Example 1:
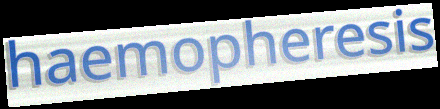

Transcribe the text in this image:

haemopheresis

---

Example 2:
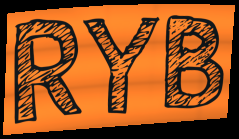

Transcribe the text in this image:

RYB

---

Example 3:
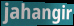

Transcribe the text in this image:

jahangir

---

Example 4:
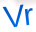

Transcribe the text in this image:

Vr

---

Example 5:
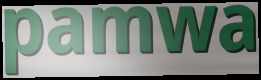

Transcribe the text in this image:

pamwa